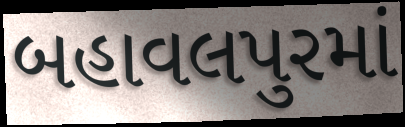
બહાવલપુરમાં